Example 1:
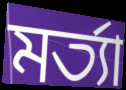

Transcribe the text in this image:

মর্ত্যা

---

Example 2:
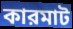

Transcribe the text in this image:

কারমাট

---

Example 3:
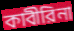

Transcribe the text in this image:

কাবীরিনা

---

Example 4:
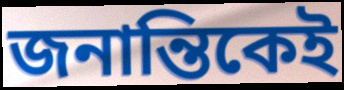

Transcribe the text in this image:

জনান্তিকেই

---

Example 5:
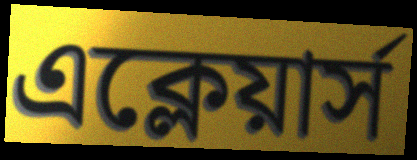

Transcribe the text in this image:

এক্লেয়ার্স